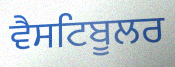
ਵੈਸਟਿਬੂਲਰ